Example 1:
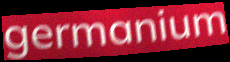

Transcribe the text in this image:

germanium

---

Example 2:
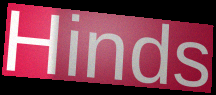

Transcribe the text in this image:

Hinds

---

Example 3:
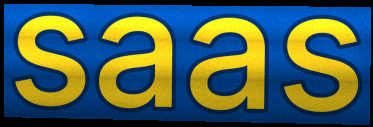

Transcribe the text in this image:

saas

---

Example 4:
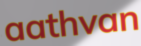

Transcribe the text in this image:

aathvan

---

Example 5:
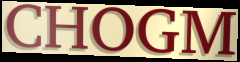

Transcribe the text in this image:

CHOGM